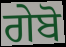
ਗੇਬੋ